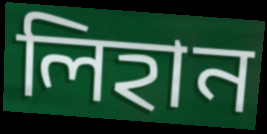
লিহান